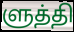
ளுத்தி